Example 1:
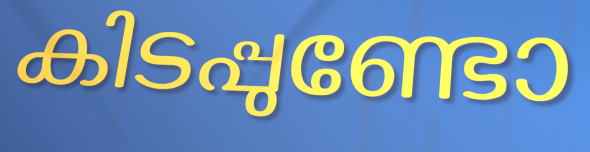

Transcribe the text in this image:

കിടപ്പുണ്ടോ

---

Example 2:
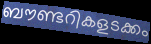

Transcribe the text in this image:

ബൗണ്ടറികളടക്കം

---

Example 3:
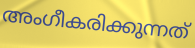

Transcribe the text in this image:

അംഗീകരിക്കുന്നത്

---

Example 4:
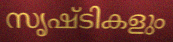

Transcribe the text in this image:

സൃഷ്ടികളും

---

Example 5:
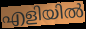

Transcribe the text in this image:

എളിയിൽ